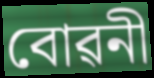
বোৱনী